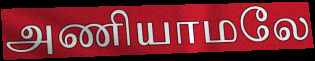
அணியாமலே